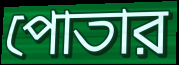
পোতার